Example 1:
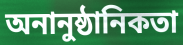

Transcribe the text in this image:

অনানুষ্ঠানিকতা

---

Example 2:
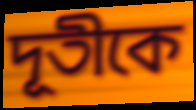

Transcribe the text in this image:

দূতীকে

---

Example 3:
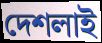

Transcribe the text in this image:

দেশলাই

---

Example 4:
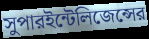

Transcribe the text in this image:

সুপারইন্টেলিজেন্সের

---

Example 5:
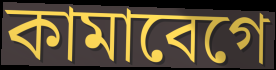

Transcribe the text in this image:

কামাবেগে